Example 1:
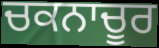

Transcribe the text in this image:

ਚਕਨਾਚੂਰ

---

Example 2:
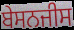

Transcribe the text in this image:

ਬੇਸਨਜੀਸ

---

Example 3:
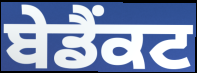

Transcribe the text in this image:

ਬੇਡੈਂਕਟ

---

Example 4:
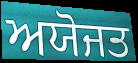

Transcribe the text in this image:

ਅਯੋਜਤ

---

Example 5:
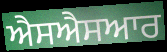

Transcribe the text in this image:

ਐਸਐਸਆਰ